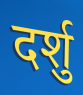
दर्शु